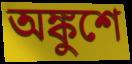
অঙ্কুশে